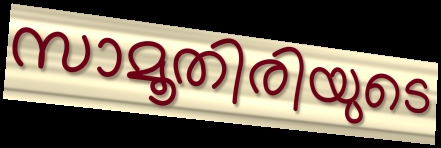
സാമൂതിരിയുടെ